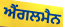
ਐਂਗਲਮੈਨ